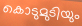
കൊടുമുടിയും